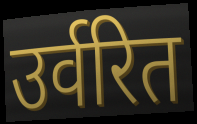
उर्वरित